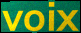
voix